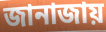
জানাজায়